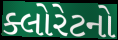
ક્લોરેટનો